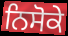
ਨਿਸੋਕੇ